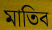
মাতিব